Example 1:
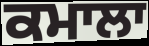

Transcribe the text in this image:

ਕਮਾਲਾ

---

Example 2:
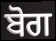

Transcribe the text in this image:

ਬੋਗ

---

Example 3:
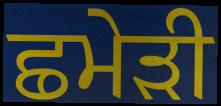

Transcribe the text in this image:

ਛਮੇੜੀ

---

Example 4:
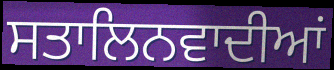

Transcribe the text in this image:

ਸਤਾਲਿਨਵਾਦੀਆਂ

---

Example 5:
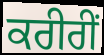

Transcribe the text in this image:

ਕਰੀਰੀਂ